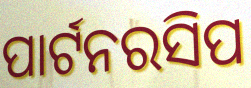
ପାର୍ଟନରସିପ